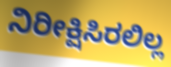
ನಿರೀಕ್ಷಿಸಿರಲಿಲ್ಲ